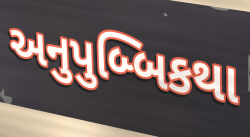
અનુપુબ્બિકથા